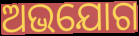
ଅଭଯୋଗ